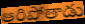
ఆరిపోతాడు